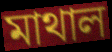
মাথাল